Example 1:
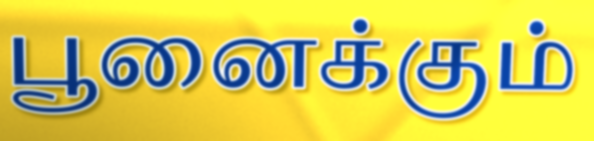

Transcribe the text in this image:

பூனைக்கும்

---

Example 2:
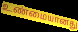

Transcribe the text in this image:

உண்மையானது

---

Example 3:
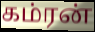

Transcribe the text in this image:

கம்ரன்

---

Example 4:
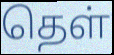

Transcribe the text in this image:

தெள்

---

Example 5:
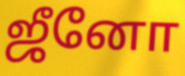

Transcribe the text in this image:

ஜீனோ